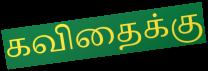
கவிதைக்கு